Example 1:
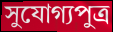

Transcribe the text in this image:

সুযোগ্যপুত্র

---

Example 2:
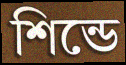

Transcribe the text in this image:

শিন্ডে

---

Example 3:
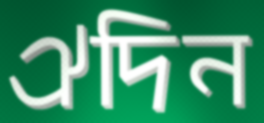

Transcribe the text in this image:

ঐদিন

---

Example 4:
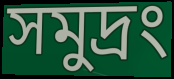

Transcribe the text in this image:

সমুদ্রং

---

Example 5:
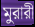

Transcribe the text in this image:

মুরারী